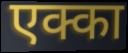
एक्का